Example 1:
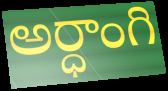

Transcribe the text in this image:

అర్ధాంగి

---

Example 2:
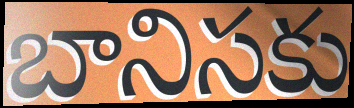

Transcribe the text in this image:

బానిసకు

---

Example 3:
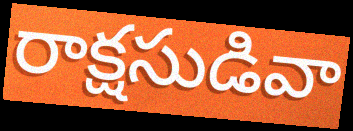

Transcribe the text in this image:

రాక్షసుడివా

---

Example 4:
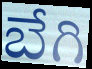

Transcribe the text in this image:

బేగి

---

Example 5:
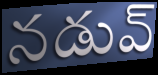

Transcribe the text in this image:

నడువ్